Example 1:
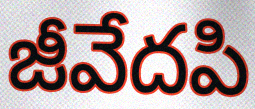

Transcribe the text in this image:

జీవేదపి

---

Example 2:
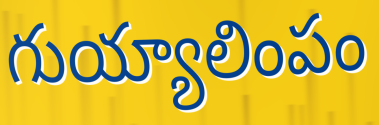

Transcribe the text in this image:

గుయ్యాలింపం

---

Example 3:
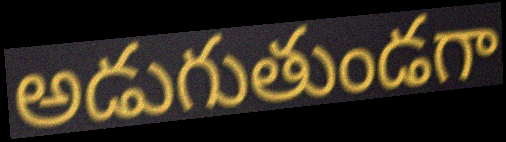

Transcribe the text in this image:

అడుగుతుండగా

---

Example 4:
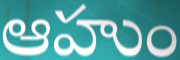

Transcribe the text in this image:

ఆహుం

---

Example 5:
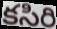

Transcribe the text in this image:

కసిరి